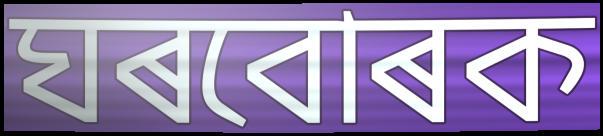
ঘৰবোৰক